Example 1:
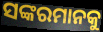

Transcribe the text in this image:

ସଙ୍କରମାନକୁ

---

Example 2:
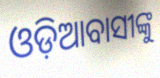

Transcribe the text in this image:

ଓଡ଼ିଆବାସୀଙ୍କୁ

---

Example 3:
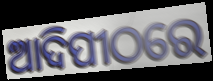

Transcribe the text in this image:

ଆଦିପୀଠରେ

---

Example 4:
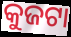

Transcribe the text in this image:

କୁଜଟା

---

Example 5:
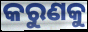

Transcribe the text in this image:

କରୁଣକୁ